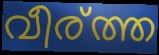
വീര്ത്ത